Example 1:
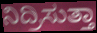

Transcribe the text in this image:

ನಿದ್ರಿಸುತ್ತಾ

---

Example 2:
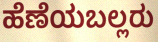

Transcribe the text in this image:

ಹೆಣೆಯಬಲ್ಲರು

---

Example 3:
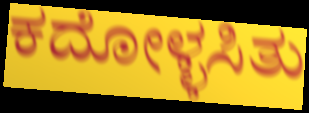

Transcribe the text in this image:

ಕದೋಳ್ಳಸಿತು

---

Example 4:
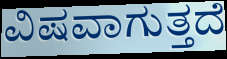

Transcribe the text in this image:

ವಿಷವಾಗುತ್ತದೆ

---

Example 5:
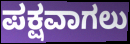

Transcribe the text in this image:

ಪಕ್ಷವಾಗಲು